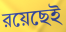
রয়েছেই